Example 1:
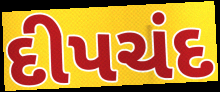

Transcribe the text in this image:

દીપચંદ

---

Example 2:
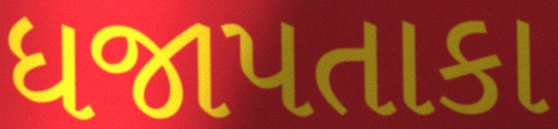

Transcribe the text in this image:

ધજાપતાકા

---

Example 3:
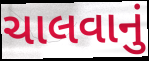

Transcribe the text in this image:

ચાલવાનું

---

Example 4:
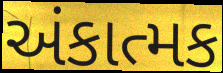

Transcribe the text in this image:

અંકાત્મક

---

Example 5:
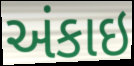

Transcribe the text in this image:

અંકાઇ